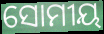
ସୋମୀୟ